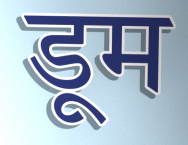
डूम